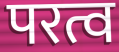
परत्व